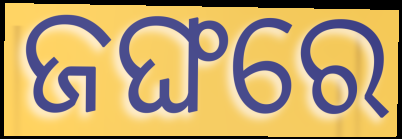
ଜଙ୍ଘରେ